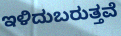
ಇಳಿದುಬರುತ್ತವೆ